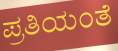
ಪ್ರತಿಯಂತೆ